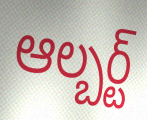
ఆల్బర్ట్